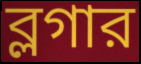
ব্লগার